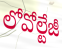
లోవోల్టేజీ